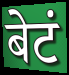
बेटं